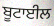
ਬੂਟਾਈਲ